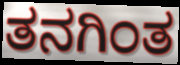
ತನಗಿಂತ